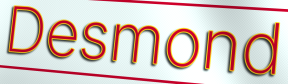
Desmond